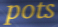
pots